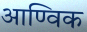
आण्विक